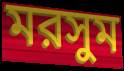
মরসুম